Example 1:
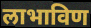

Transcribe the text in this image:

लाभाविण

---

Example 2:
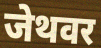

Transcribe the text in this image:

जेथवर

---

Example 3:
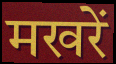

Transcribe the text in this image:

मखरें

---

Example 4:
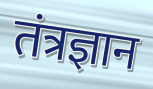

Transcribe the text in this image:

तंत्रज्ञान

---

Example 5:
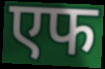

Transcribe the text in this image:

एफ